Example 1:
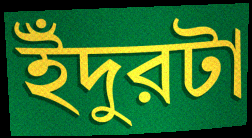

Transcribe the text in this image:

ইঁদুরটা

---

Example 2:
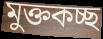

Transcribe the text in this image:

মুক্তকচ্ছ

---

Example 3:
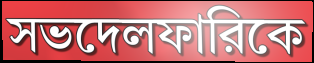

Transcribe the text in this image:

সভদেলফারিকে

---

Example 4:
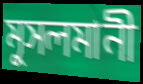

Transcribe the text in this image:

মুসলমানী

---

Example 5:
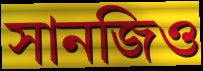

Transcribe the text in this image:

সানজিও